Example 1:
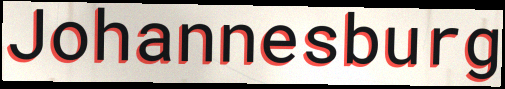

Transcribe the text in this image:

Johannesburg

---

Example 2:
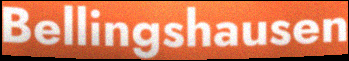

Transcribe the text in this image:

Bellingshausen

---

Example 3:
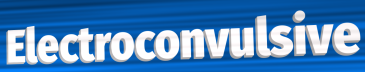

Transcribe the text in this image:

Electroconvulsive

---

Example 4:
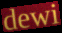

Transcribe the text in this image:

dewi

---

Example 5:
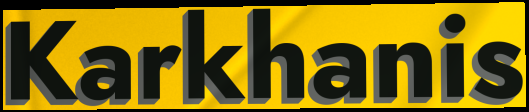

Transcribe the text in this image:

Karkhanis